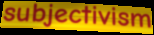
subjectivism